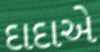
દાદાએ